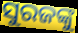
ସୁରଜଙ୍କୁ